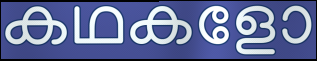
കഥകളോ